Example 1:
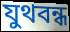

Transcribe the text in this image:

যুথবন্ধ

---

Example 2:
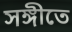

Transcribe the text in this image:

সঙ্গীতে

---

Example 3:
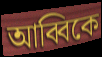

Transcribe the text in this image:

আব্বিকে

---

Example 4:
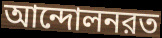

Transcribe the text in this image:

আন্দোলনরত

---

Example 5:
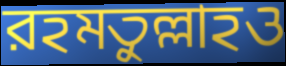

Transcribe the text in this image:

রহমতুল্লাহও